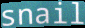
snail